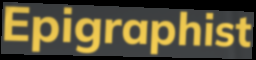
Epigraphist